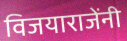
विजयाराजेंनी